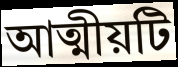
আত্মীয়টি